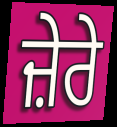
ਜ਼ੇਰੇ